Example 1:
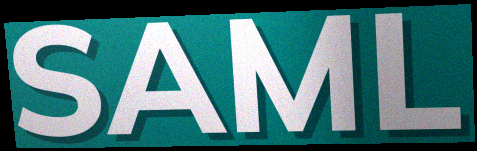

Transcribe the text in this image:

SAML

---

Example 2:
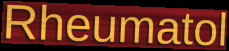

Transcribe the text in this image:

Rheumatol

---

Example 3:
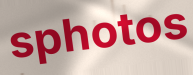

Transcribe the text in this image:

sphotos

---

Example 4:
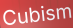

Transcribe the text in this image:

Cubism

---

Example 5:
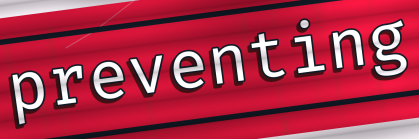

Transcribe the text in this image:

preventing